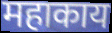
महाकाय